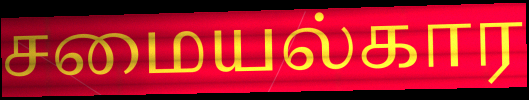
சமையல்கார